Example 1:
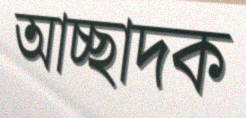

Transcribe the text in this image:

আচ্ছাদক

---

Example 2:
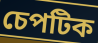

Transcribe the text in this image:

চেপটিক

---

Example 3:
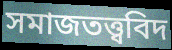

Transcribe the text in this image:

সমাজতত্ত্ববিদ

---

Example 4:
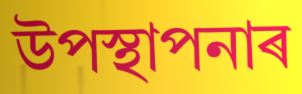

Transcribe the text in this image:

উপস্থাপনাৰ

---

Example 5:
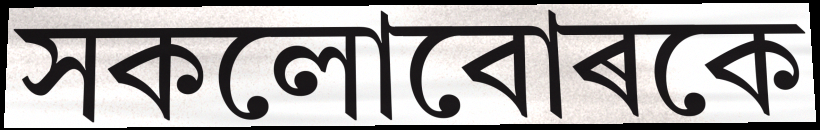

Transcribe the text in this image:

সকলোবোৰকে